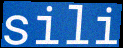
sili